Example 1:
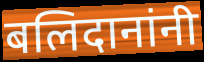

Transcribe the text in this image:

बलिदानांनी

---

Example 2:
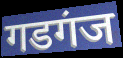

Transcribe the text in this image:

गडगंज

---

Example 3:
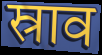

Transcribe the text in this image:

स्राव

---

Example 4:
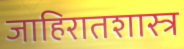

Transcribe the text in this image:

जाहिरातशास्त्र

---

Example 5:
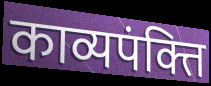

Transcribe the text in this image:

काव्यपंक्ति